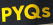
PYQs